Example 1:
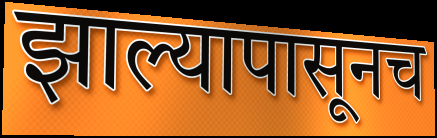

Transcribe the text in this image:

झाल्यापासूनच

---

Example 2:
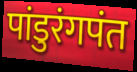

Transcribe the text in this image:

पांडुरंगपंत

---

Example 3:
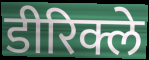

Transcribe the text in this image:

डीरिक्ले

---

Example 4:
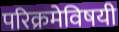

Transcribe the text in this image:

परिक्रमेविषयी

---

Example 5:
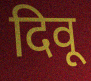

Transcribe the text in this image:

दिवू